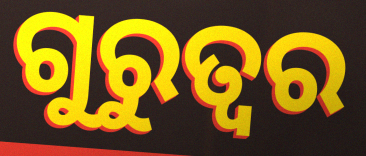
ଗୁରୁତ୍ବର